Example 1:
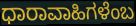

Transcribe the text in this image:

ಧಾರಾವಾಹಿಗಳೆಂಬ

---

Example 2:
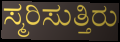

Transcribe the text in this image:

ಸ್ಮರಿಸುತ್ತಿರು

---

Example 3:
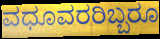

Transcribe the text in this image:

ವಧೂವರರಿಬ್ಬರೂ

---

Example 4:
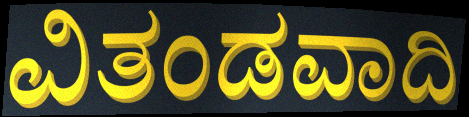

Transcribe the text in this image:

ವಿತಂಡವಾದಿ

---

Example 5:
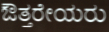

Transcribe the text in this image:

ಔತ್ತರೇಯರು